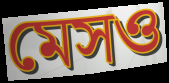
মেসও